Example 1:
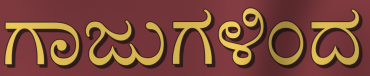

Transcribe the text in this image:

ಗಾಜುಗಳಿಂದ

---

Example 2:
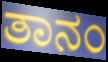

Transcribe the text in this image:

ತಾನಂ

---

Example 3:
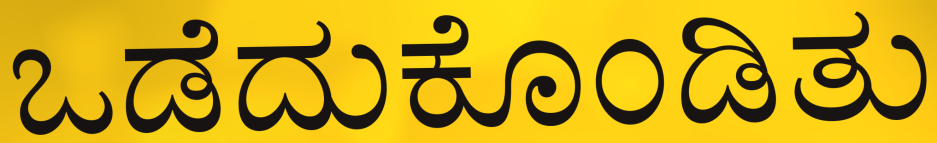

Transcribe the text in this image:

ಒಡೆದುಕೊಂಡಿತು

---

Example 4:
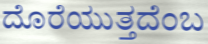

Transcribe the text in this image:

ದೊರೆಯುತ್ತದೆಂಬ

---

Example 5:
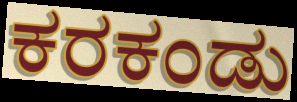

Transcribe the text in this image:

ಕರಕಂಡು